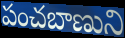
పంచబాణుని